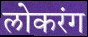
लोकरंग